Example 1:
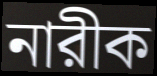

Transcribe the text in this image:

নারীক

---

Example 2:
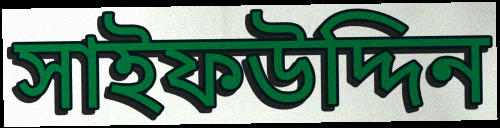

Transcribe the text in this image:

সাইফউদ্দিন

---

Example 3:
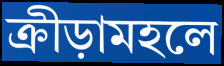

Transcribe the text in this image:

ক্রীড়ামহলে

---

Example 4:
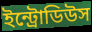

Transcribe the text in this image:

ইন্ট্রোডিউস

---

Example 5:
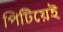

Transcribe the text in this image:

পিটিয়েই